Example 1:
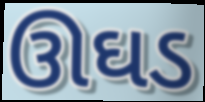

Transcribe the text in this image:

ઊઘડ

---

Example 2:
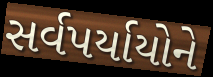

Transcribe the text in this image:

સર્વપર્યાયોને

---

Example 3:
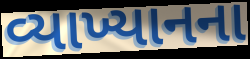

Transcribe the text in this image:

વ્યાખ્યાનના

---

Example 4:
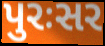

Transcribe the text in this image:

પુરઃસર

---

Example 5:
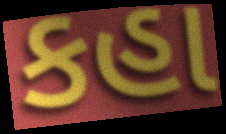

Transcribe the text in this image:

કહા